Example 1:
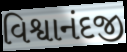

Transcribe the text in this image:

વિશ્વાનંદજી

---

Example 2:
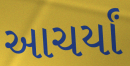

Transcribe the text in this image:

આચર્યાં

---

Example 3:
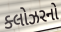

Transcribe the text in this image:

ક્લોઝરનો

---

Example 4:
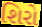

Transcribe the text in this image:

શિરો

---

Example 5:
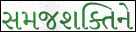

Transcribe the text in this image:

સમજશક્તિને